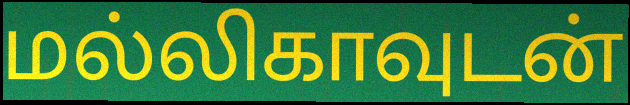
மல்லிகாவுடன்